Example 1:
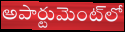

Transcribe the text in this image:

అపార్టుమెంట్‌లో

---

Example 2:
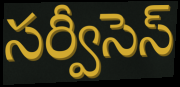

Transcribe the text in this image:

సర్వీసెస్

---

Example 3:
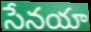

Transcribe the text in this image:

సేనయా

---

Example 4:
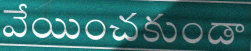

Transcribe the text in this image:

వేయించకుండా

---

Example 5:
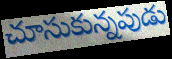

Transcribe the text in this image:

చూసుకున్నపుడు